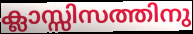
ക്ലാസ്സിസത്തിനു